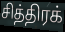
சித்திரக்